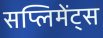
सप्लिमेंट्स